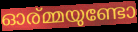
ഓര്മ്മയുണ്ടോ